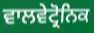
ਵਾਲਵੇਟ੍ਰੋਨਿਕ